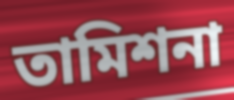
তামিশনা